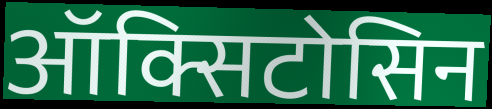
ऑक्सिटोसिन